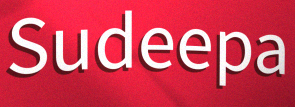
Sudeepa